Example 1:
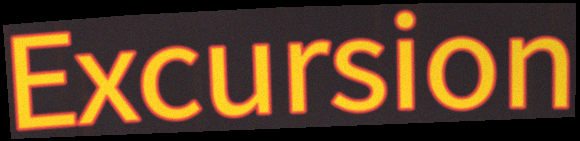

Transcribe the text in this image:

Excursion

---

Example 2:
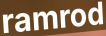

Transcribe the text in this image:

ramrod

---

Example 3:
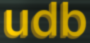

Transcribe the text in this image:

udb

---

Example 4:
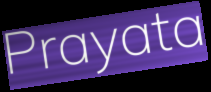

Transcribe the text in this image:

Prayata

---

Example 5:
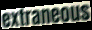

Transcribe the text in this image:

extraneous